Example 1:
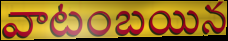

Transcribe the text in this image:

వాటంబయిన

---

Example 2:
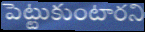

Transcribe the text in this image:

పెట్టుకుంటారని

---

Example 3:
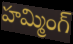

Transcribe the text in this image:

హమ్మింగ్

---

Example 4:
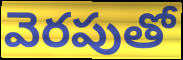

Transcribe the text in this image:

వెరపుతో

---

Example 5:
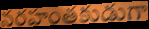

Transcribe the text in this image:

నరహంతకుడుగా